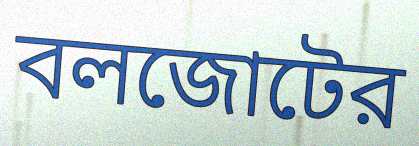
বলজোটের